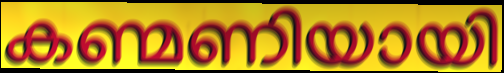
കണ്മണിയായി